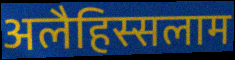
अलैहिस्सलाम